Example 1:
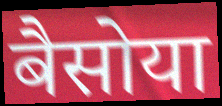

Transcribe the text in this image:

बैसोया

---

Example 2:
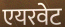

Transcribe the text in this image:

एयरवेट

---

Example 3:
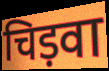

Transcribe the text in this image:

चिड़वा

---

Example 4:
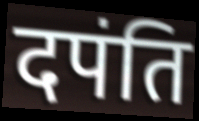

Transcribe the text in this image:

दपंति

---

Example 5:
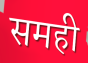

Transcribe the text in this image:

समही